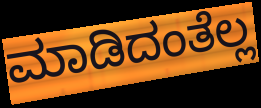
ಮಾಡಿದಂತೆಲ್ಲ